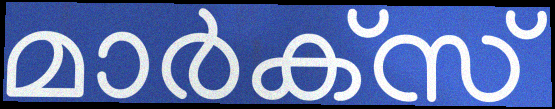
മാർക്‌സ്